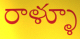
రాళ్ళూ